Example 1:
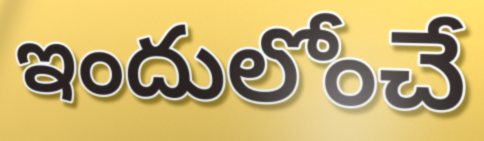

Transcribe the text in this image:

ఇందులోంచే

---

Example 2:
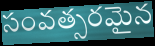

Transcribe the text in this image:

సంవత్సరమైన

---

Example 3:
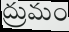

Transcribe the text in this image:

ద్రుమం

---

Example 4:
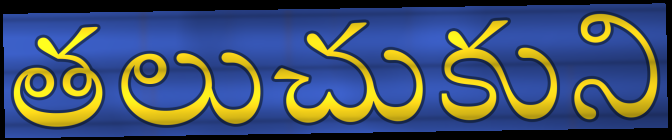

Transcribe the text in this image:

తలుచుకుని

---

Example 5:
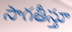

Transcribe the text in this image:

సాగతీస్తూ